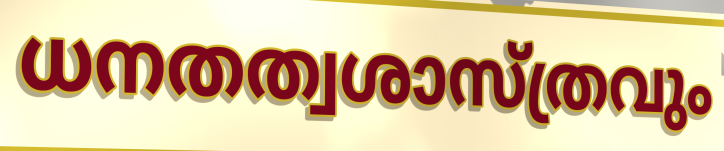
ധനതത്വശാസ്ത്രവും